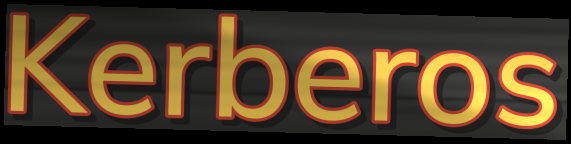
Kerberos